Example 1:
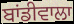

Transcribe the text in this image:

ਬਾਂਡੀਵਾਲਾ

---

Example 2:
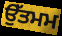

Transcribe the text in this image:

ਉੱਤਮਮ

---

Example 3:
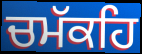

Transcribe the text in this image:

ਚਮੱਕਹਿ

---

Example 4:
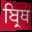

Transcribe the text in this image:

ਬ੍ਰਿਥ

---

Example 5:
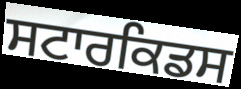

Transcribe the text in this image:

ਸਟਾਰਕਿਡਸ